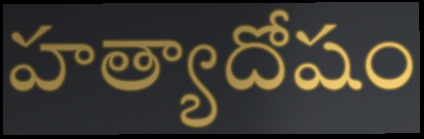
హత్యాదోషం